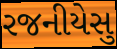
રજનીયેસુ